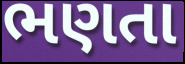
ભણતા